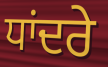
ਧਾਂਦਰੇ